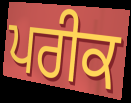
ਪਰੀਕ